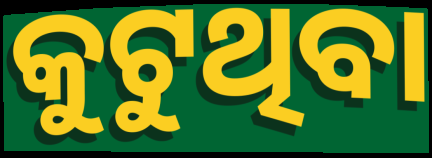
କୁଟୁଥିବା